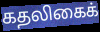
கதலிகைக்